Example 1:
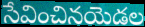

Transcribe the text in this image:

సేవించినయెడల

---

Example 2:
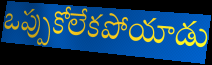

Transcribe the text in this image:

ఒప్పుకోలేకపోయాడు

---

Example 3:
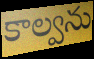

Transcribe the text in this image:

కాల్వను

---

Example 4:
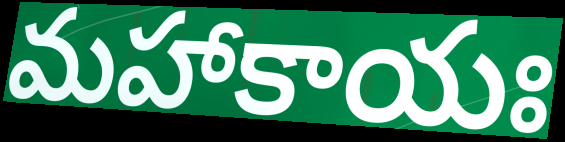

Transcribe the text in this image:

మహాకాయః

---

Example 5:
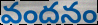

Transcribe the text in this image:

వందనం